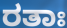
ರತಾಃ